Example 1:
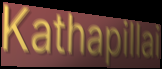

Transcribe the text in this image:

Kathapillai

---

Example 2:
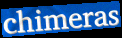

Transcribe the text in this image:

chimeras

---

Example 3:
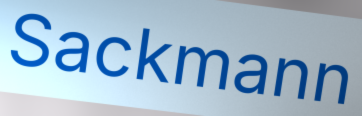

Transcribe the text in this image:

Sackmann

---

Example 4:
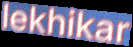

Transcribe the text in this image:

lekhikar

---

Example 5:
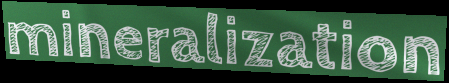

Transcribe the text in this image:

mineralization